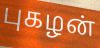
புகழன்